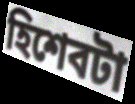
হিশেবটা